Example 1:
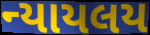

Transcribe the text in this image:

ન્યાયલય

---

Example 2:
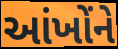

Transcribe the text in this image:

આંખોંને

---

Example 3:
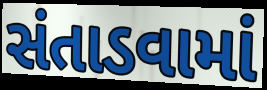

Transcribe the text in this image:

સંતાડવામાં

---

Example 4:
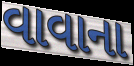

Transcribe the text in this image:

વાવાના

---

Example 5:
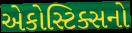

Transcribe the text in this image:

એકોસ્ટિક્સનો